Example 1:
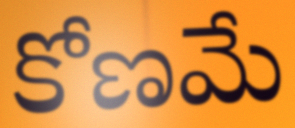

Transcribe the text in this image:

కోణమే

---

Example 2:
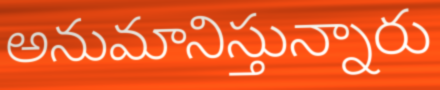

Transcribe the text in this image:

అనుమానిస్తున్నారు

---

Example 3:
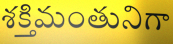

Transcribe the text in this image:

శక్తిమంతునిగా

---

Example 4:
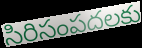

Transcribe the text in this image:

సిరిసంపదలకు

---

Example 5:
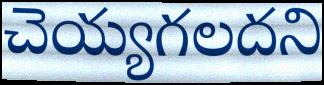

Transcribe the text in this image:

చెయ్యగలదని